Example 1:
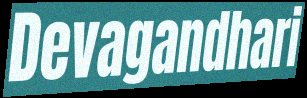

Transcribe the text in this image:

Devagandhari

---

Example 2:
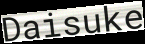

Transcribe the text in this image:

Daisuke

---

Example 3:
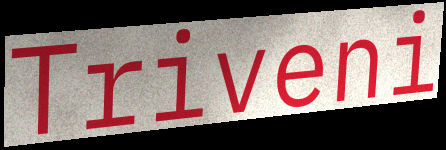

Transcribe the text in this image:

Triveni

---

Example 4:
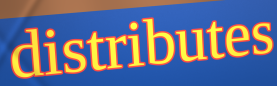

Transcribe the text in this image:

distributes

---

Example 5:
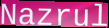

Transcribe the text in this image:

Nazrul